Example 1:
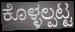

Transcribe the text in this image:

ಕೊಳ್ಳಲ್ಪಟ್ಟ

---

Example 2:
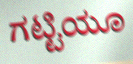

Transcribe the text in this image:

ಗಟ್ಟಿಯೂ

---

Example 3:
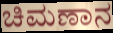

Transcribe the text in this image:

ಚಿಮಣಾನ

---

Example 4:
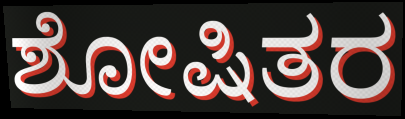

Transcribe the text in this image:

ಶೋಷಿತರ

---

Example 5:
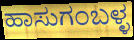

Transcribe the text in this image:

ಹಾಸುಗಂಬಳ್ಳ